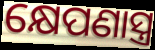
କ୍ଷେପଣାସ୍ତ୍ର